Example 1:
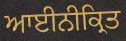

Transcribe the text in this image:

ਆਈਨੀਕ੍ਰਿਤ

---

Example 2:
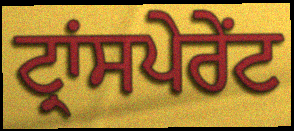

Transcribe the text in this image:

ਟ੍ਰਾਂਸਪੇਰੇਂਟ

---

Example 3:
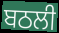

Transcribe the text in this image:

ਬਠਲੀ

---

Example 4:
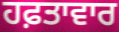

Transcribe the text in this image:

ਹਫ਼ਤਾਵਾਰ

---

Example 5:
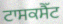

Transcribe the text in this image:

ਟਾਸਕਸੈੱਟ